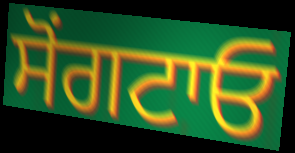
ਸੋਂਗਟਾਓ